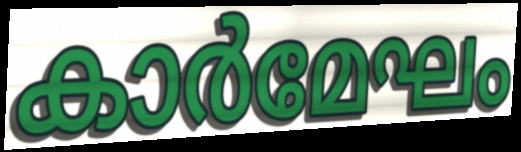
കാർമേഘം